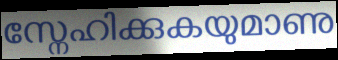
സ്നേഹിക്കുകയുമാണു